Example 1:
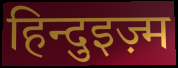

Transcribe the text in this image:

हिन्दुइज़्म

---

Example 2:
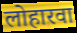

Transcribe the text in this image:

लोहारवा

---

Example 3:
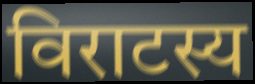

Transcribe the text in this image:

विराटस्य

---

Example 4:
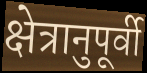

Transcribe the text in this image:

क्षेत्रानुपूर्वी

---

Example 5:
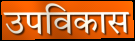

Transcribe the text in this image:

उपविकास